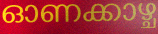
ഓണക്കാഴ്ച